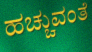
ಹಚ್ಚುವಂತೆ